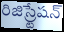
రిజిస్ర్టేషన్